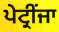
ਪੇਟ੍ਰੀਂਜਾ